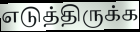
எடுத்திருக்க